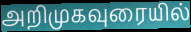
அறிமுகவுரையில்